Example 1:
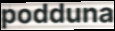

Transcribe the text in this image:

podduna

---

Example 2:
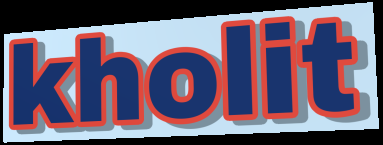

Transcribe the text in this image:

kholit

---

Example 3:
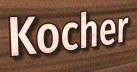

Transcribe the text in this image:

Kocher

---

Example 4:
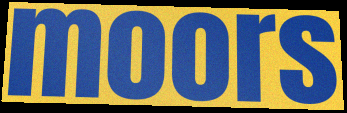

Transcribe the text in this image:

moors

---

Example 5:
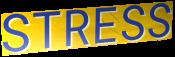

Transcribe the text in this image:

STRESS